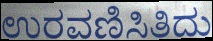
ಉರವಣಿಸಿತಿದು